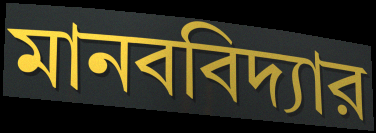
মানববিদ্যার